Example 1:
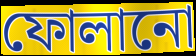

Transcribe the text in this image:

ফোলানো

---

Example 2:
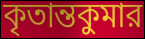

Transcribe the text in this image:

কৃতান্তকুমার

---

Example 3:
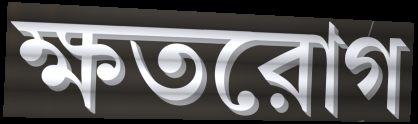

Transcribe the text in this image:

ক্ষতরোগ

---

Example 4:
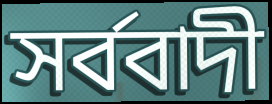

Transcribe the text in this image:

সর্ববাদী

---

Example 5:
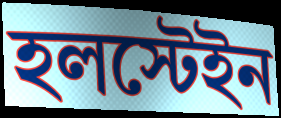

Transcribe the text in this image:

হলস্টেইন